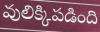
వులిక్కిపడింది